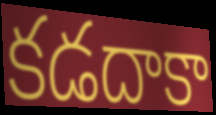
కడదాకా